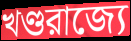
খণ্ডরাজ্যে